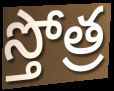
స్తోత్ర